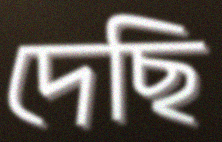
দেছি